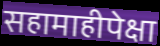
सहामाहीपेक्षा